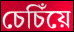
চেচিঁয়ে